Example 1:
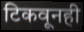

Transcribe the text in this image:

टिकवूनही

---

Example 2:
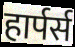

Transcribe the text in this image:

हार्पर्स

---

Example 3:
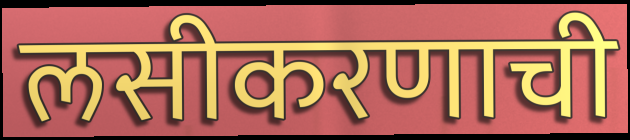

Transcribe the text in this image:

लसीकरणाची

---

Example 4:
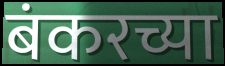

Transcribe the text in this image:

बंकरच्या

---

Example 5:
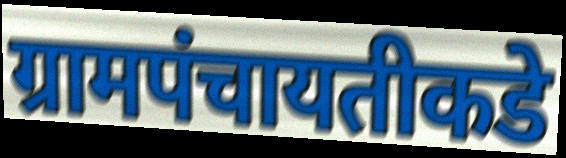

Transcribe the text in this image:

ग्रामपंचायतीकडे